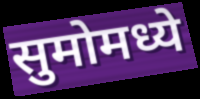
सुमोमध्ये